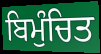
ਬਿਮੁੰਚਿਤ